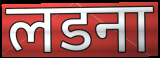
लडना